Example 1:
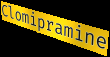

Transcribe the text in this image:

Clomipramine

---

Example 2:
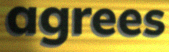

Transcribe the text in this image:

agrees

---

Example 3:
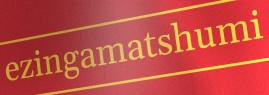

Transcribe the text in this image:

ezingamatshumi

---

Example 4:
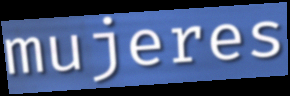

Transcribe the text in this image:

mujeres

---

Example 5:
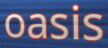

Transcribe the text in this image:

oasis